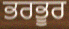
ਭਰਭੂਰ